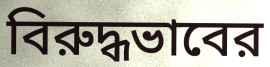
বিরুদ্ধভাবের